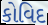
કોવિદ